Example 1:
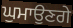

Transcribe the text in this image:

ਘੁਮਾਉਣਗੇ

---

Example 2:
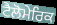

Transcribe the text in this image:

ਟੈਲੋਮੇਰਿਕ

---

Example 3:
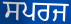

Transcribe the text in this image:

ਸਪਰਜ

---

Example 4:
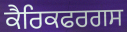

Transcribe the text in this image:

ਕੈਰਿਕਫਰਗਸ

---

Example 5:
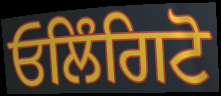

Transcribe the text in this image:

ਓਲਿੰਗਿਟੋ